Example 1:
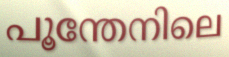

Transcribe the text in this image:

പൂന്തേനിലെ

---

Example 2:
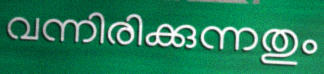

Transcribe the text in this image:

വന്നിരിക്കുന്നതും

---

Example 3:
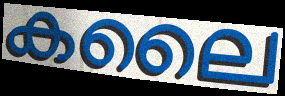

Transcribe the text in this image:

കലൈ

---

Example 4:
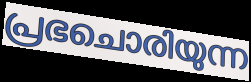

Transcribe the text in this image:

പ്രഭചൊരിയുന്ന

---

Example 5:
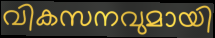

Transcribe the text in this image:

വികസനവുമായി